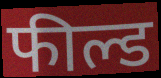
फील्ड